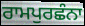
ਰਾਮਪੁਰਛੰਨਾ